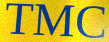
TMC